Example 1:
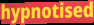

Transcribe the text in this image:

hypnotised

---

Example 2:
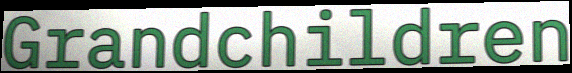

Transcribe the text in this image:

Grandchildren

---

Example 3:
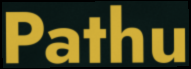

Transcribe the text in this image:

Pathu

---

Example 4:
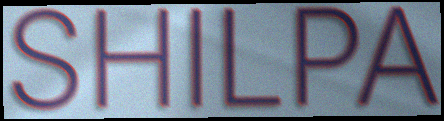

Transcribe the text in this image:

SHILPA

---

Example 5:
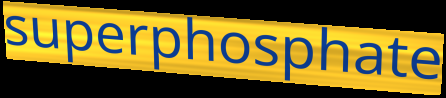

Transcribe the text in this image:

superphosphate